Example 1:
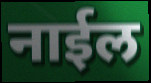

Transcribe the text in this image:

नाईल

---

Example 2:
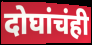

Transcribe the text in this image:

दोघांचंही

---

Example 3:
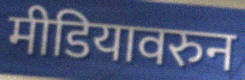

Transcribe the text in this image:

मीडियावरुन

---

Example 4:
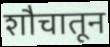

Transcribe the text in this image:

शौचातून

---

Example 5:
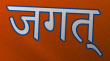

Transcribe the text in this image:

जगत्